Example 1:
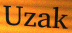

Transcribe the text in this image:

Uzak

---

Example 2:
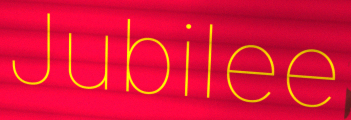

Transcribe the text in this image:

Jubilee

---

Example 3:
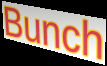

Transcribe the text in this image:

Bunch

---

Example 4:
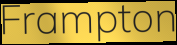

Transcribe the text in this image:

Frampton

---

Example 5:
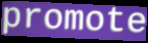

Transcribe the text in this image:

promote